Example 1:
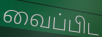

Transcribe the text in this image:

வைப்பிட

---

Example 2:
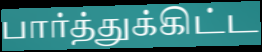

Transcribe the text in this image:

பார்த்துக்கிட்ட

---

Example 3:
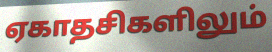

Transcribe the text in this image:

ஏகாதசிகளிலும்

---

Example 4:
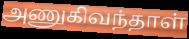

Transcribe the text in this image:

அணுகிவந்தாள்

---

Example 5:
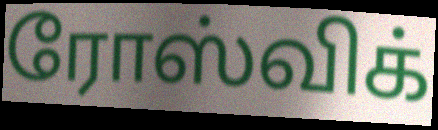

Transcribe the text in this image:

ரோஸ்விக்